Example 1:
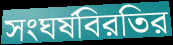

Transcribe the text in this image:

সংঘর্ষবিরতির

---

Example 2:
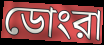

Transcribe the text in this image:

ডোংরা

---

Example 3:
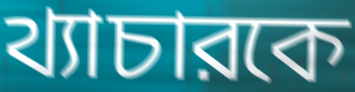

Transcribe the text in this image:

থ্যাচারকে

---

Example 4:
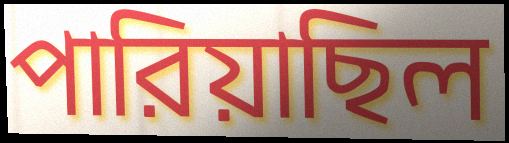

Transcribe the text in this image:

পারিয়াছিল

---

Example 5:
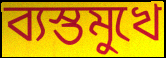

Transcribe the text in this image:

ব্যস্তমুখে